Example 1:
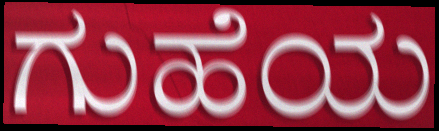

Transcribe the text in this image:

ಗುಹೆಯ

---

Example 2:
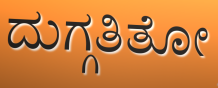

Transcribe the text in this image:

ದುಗ್ಗತಿತೋ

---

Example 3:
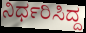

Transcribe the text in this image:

ನಿರ್ಧರಿಸಿದ್ದ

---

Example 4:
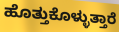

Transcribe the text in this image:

ಹೊತ್ತುಕೊಳ್ಳುತ್ತಾರೆ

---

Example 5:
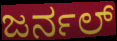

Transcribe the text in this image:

ಜರ್ನಲ್